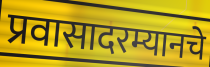
प्रवासादरम्यानचे